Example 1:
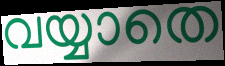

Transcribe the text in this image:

വയ്യാതെ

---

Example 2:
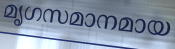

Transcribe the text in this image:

മൃഗസമാനമായ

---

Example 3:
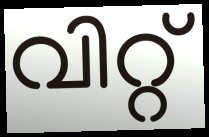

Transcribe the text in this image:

വിറ്റ്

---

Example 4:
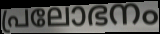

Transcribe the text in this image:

പ്രലോഭനം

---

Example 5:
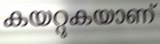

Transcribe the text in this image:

കയറ്റുകയാണ്